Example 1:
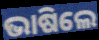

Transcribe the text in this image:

ଭାଷିଲେ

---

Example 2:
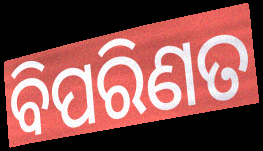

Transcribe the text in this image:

ବିପରିଣତ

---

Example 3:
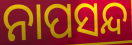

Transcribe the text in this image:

ନାପସନ୍ଦ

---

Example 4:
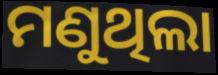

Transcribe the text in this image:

ମଣୁଥିଲା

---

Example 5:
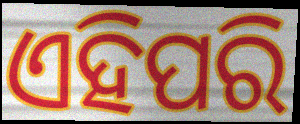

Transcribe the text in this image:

ଏହିପରି